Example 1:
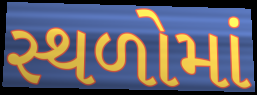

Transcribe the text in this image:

સ્થળોમાં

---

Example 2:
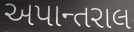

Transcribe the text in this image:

અપાન્તરાલ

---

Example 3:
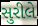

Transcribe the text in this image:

સુરીલે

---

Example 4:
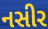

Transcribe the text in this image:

નસીર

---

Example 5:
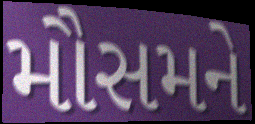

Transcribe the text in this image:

મૌસમને